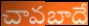
చావబాదే